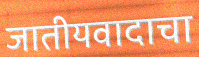
जातीयवादाचा